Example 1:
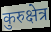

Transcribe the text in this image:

कुरुक्षेत्र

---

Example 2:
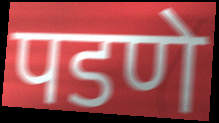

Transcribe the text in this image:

पडणे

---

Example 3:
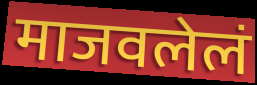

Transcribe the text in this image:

माजवलेलं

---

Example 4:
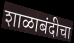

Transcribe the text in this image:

शाळाबंदीचा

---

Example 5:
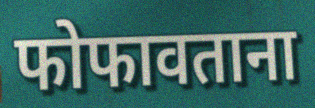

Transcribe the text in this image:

फोफावताना